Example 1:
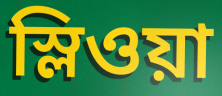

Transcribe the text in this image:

স্লিওয়া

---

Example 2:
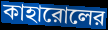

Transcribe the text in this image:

কাহারোলের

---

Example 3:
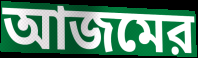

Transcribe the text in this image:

আজমের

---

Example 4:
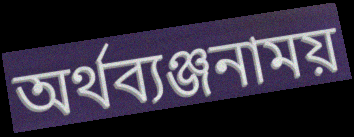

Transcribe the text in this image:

অর্থব্যঞ্জনাময়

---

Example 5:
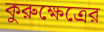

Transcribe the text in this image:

কুরুক্ষেত্রের